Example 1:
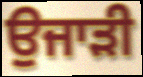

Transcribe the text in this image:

ਉਜਾੜੀ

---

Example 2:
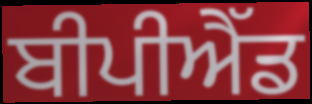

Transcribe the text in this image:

ਬੀਪੀਐੱਡ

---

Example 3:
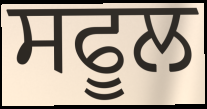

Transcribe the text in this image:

ਸਫੂਲ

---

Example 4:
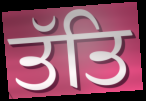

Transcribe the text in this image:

ਤੱਤਿ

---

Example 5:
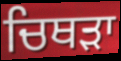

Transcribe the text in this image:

ਚਿਥੜਾ